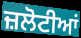
ਜ਼ਲੋਟੀਆਂ